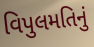
વિપુલમતિનું